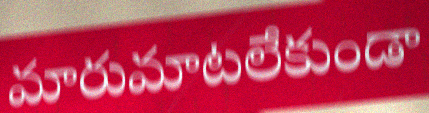
మారుమాటలేకుండా